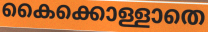
കൈക്കൊള്ളാതെ